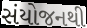
સંયોજનથી